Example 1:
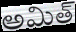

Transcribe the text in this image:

అమిత్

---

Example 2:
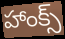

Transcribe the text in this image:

హాంక్స్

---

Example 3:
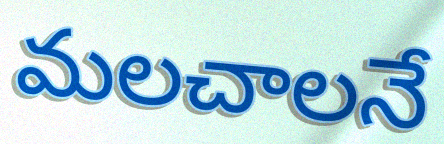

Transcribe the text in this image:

మలచాలనే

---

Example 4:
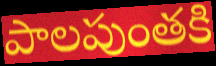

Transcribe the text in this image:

పాలపుంతకి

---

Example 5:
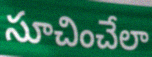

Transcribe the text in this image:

సూచించేలా